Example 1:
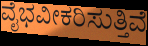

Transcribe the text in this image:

ವೈಭವೀಕರಿಸುತ್ತಿವೆ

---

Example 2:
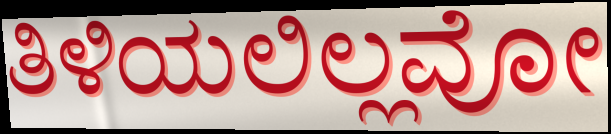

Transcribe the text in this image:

ತಿಳಿಯಲಿಲ್ಲವೋ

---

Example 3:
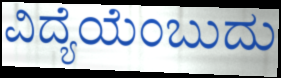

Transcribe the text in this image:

ವಿದ್ಯೆಯೆಂಬುದು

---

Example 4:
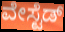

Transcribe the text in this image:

ವೇಸ್ಟೆಡ್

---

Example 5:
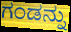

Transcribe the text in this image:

ಗಂಡನ್ನು